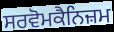
ਸਰਵੋਮਕੈਨਿਜ਼ਮ